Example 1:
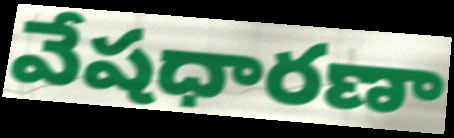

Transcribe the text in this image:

వేషధారణా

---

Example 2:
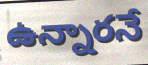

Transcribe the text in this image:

ఉన్నారనే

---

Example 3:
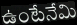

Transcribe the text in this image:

ఉంటేనేమి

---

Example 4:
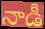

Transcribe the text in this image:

నాడీ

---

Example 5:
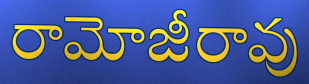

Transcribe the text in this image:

రామోజీరావు